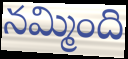
నమ్మింది